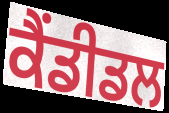
ਕੈਂਡੀਡਲ